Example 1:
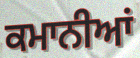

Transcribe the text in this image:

ਕਮਾਨੀਆਂ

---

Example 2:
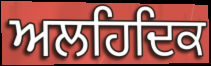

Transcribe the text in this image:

ਅਲਹਿਦਿਕ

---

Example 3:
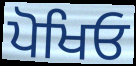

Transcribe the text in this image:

ਪੋਖਿਓ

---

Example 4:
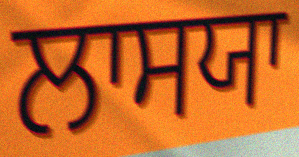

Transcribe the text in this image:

ਲਾਸਯਾ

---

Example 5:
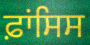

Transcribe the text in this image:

ਫ਼ਾਂਸਿਸ